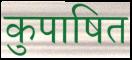
कुपाषित